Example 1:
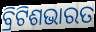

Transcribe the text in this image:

ବ୍ରିଟିଶଭାରତ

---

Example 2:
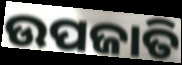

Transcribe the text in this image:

ଉପଜାତି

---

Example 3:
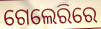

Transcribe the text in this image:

ଗେଲେରିରେ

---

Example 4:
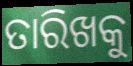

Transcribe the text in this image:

ତାରିଖକୁ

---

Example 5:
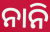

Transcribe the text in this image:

ନାନି